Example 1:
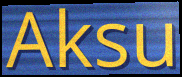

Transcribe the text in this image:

Aksu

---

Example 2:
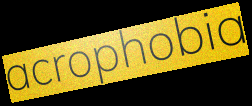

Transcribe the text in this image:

acrophobia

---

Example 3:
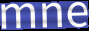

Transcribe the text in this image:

mne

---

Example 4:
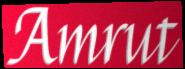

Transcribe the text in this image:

Amrut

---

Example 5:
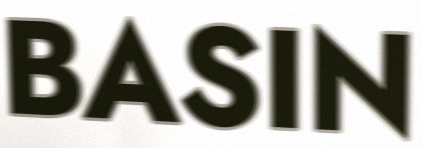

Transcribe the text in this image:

BASIN